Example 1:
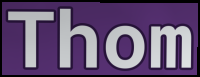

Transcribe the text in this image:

Thom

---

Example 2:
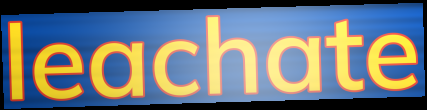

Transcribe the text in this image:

leachate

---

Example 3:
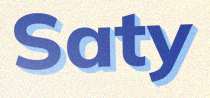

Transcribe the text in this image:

Saty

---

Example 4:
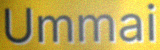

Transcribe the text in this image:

Ummai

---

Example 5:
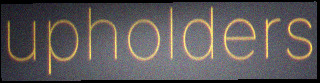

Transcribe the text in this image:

upholders